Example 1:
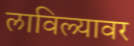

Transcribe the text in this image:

लाविल्यावर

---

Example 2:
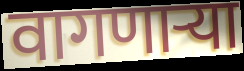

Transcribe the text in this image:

वागणाऱ्या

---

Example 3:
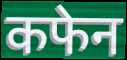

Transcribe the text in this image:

कफेन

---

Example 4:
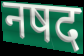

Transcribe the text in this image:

नषद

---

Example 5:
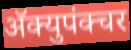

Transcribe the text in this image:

ॲक्युपंक्चर